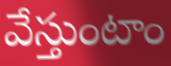
వేస్తుంటాం